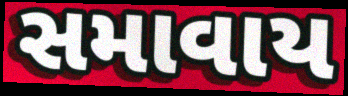
સમાવાય